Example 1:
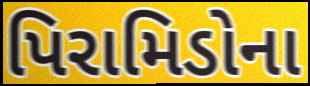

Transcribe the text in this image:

પિરામિડોના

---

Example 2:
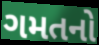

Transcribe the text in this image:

ગમતનો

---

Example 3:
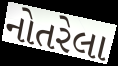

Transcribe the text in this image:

નોતરેલા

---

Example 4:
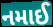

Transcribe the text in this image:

નમાઈ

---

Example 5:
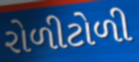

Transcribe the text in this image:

રોળીટોળી